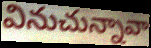
వినుచున్నావా